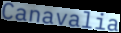
Canavalia